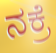
ನಕ್ರೆ